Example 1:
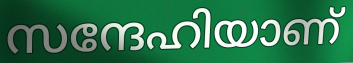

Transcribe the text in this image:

സന്ദേഹിയാണ്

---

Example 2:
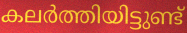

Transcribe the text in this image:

കലർത്തിയിട്ടുണ്ട്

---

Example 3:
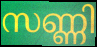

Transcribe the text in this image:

സണ്ണി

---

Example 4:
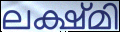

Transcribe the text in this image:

ലക്ഷ്മി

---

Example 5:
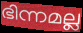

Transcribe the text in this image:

ഭിന്നമല്ല